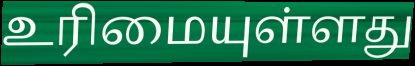
உரிமையுள்ளது